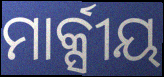
ମାର୍କ୍ସୀୟ